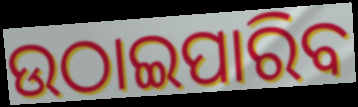
ଉଠାଇପାରିବ